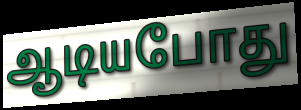
ஆடியபோது